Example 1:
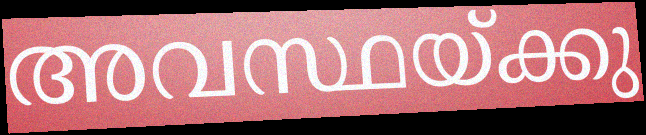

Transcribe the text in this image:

അവസ്ഥയ്ക്കു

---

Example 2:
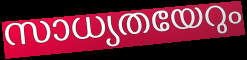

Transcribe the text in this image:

സാധ്യതയേറും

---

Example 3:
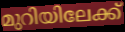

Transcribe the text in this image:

മുറിയിലേക്ക്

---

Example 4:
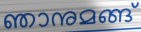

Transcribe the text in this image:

ഞാനുമങ്ങ്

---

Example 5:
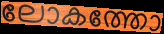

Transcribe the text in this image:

ലോകത്തോ